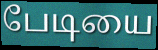
பேடியை